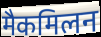
मैकमिलन